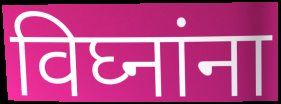
विघ्नांना